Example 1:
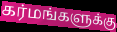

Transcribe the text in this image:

கர்மங்களுக்கு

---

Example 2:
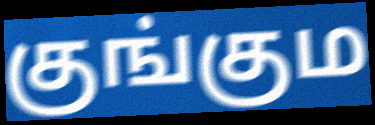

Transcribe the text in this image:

குங்கும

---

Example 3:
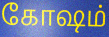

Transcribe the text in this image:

கோஷம்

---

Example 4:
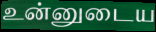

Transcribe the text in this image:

உன்னுடைய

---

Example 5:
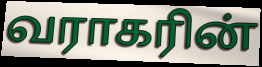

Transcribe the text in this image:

வராகரின்